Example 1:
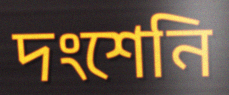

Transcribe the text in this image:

দংশেনি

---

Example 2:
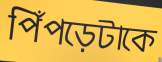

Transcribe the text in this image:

পিঁপড়েটাকে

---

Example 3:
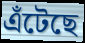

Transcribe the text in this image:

এঁটেছে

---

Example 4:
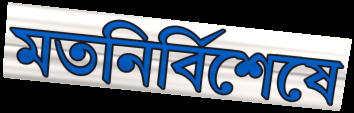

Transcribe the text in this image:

মতনির্বিশেষে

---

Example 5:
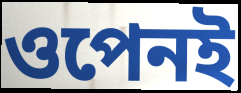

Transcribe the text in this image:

ওপেনই